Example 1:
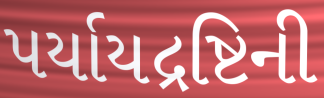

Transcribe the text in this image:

પર્યાયદ્રષ્ટિની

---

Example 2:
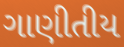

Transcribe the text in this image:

ગાણીતીય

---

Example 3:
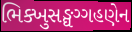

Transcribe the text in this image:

ભિક્ખુસઙ્ઘગ્ગહણેન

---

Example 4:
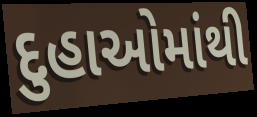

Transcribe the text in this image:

દુહાઓમાંથી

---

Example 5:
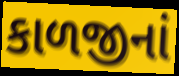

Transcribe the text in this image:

કાળજીનાં